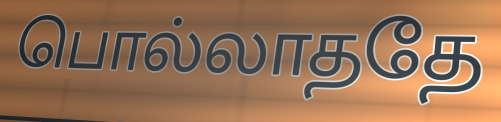
பொல்லாததே